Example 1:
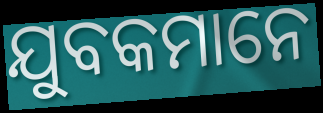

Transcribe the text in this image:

ଯୁବକମାନେ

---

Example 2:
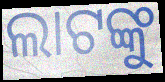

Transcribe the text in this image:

ଲାଟଙ୍କୁ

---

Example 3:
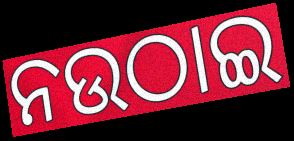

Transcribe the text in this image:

ନଉଠାଇ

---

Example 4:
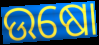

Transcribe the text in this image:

ଉଷୋ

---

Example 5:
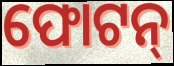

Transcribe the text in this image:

ଫୋଟନ୍